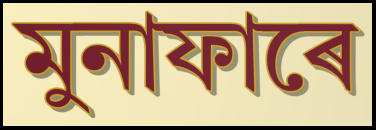
মুনাফাৰে